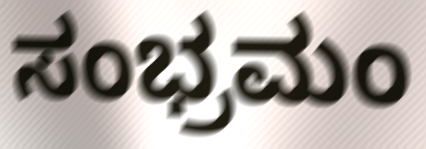
ಸಂಭ್ರಮಂ